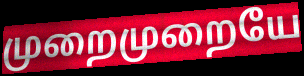
முறைமுறையே